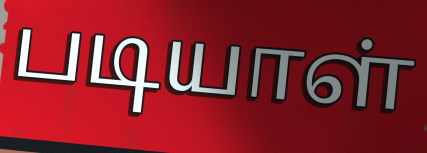
படியாள்